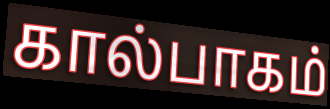
கால்பாகம்